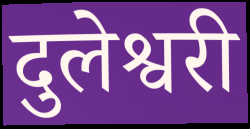
दुलेश्वरी